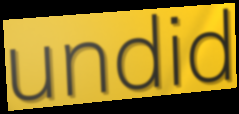
undid